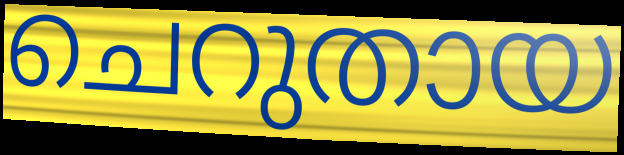
ചെറുതായ